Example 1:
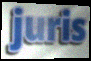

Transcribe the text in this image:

juris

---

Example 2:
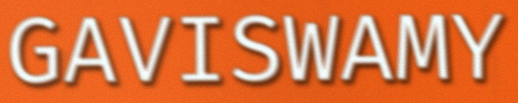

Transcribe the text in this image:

GAVISWAMY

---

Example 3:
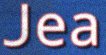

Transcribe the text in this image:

Jea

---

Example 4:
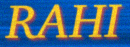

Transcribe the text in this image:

RAHI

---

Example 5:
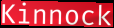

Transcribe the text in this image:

Kinnock